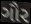
ગૌર